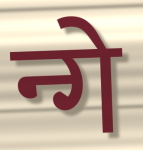
न्गे